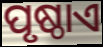
ପୃଷ୍ଠାଏ